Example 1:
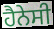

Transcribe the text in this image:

ਹੈਨੇਸੀ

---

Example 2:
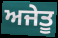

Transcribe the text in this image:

ਅਜੇਤੂ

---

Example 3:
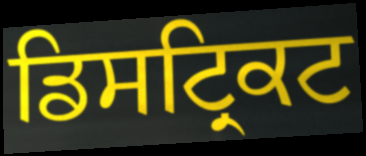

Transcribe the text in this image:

ਡਿਸਟ੍ਰਿਕਟ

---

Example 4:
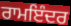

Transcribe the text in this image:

ਰਾਮਇੰਦਰ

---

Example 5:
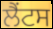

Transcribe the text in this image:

ਲੈਂਟਸ